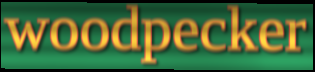
woodpecker